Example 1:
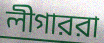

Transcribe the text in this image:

লীগাররা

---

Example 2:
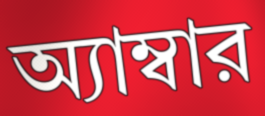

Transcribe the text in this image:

অ্যাম্বার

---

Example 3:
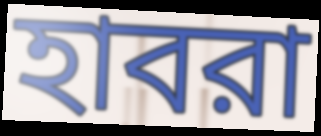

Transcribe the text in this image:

হাবরা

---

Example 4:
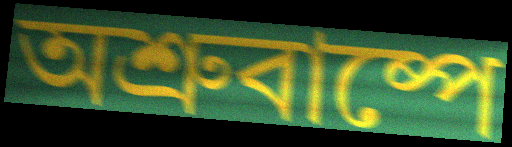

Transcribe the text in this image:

অশ্রুবাষ্পে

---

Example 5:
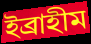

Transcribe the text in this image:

ইব্রাহীম